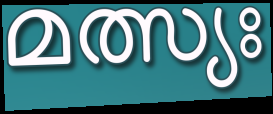
മത്സ്യഃ